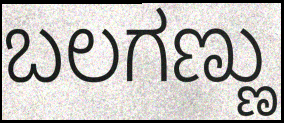
ಬಲಗಣ್ಣು